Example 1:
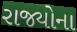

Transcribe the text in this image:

રાજ્યોના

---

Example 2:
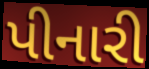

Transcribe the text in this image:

પીનારી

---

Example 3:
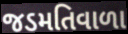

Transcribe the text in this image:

જડમતિવાળા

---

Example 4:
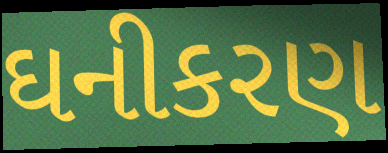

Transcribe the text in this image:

ઘનીકરણ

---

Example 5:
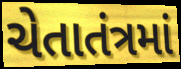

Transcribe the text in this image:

ચેતાતંત્રમાં